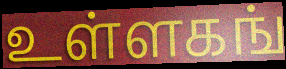
உள்ளகங்